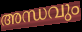
അന്ധവും